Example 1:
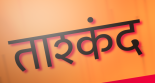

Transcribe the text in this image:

ताश्कंद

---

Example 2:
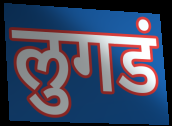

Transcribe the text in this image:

लुगडं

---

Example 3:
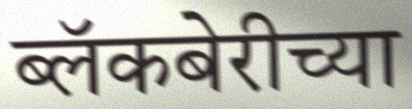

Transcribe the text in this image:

ब्लॅकबेरीच्या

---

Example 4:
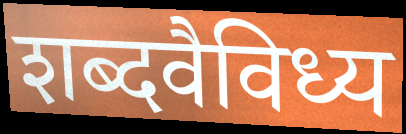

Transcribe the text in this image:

शब्दवैविध्य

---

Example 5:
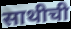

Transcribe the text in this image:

साथीची